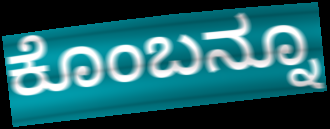
ಕೊಂಬನ್ನೂ